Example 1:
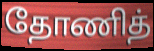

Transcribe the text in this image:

தோணித்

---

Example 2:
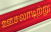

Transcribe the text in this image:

ஊசலாடிற்று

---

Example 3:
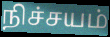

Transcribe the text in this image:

நிச்சயம்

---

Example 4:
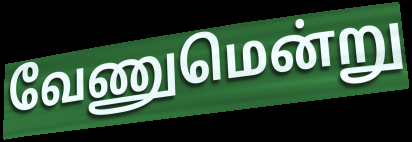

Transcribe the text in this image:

வேணுமென்று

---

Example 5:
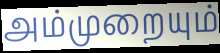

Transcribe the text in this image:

அம்முறையும்